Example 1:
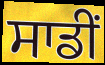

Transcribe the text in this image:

ਸਾਡੀਂ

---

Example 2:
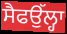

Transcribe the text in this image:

ਸੈਫਉੱਲ੍ਹਾ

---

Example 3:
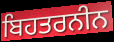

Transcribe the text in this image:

ਬਿਹਤਰਨੀਨ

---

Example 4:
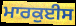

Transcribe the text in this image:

ਮਾਰਕੁਈਸ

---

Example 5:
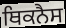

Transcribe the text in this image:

ਥਿਕਨੈਸ